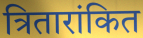
त्रितारांकित